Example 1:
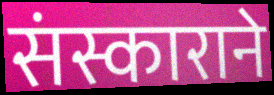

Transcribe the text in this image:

संस्काराने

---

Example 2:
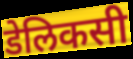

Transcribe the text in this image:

डेलिकसी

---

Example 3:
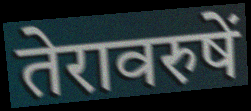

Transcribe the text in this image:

तेरावरुषें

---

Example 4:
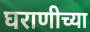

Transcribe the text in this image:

घराणीच्या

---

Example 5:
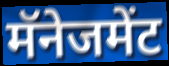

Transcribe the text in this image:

मॅनेजमेंट